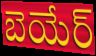
బెయేర్